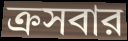
ক্রসবার